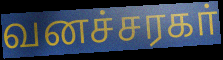
வனச்சரகர்